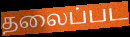
தலைப்பட